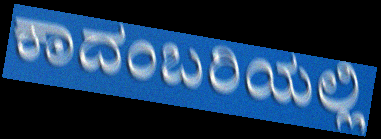
ಕಾದಂಬರಿಯಲ್ಲಿ